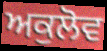
ਅਕੁਲੋਵ